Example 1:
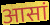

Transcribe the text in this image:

आसां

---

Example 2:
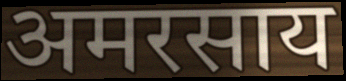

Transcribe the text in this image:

अमरसाय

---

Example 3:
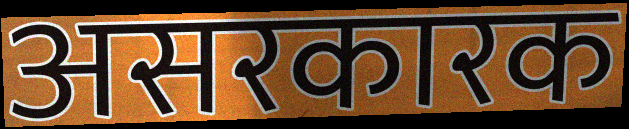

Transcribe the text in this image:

असरकारक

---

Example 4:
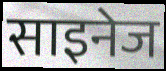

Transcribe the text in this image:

साइनेज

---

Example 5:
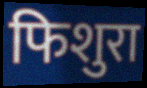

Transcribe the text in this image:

फिशुरा